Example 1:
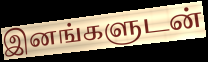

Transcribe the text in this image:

இனங்களுடன்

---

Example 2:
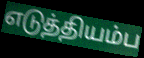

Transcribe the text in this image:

எடுத்தியம்ப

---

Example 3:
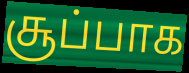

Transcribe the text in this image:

சூப்பாக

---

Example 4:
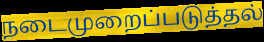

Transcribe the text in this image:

நடைமுறைப்படுத்தல்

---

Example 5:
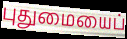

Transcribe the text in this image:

புதுமையைப்